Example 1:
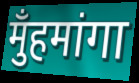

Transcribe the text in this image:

मुँहमांगा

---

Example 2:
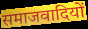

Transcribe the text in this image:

समाजवादियों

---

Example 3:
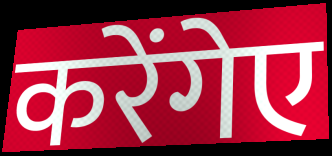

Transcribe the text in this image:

करेंगेए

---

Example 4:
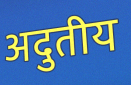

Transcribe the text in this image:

अदुतीय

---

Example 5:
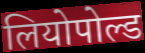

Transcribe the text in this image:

लियोपोल्ड